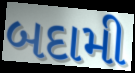
બદામી